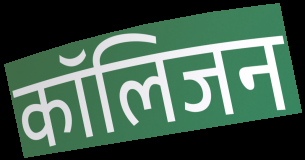
कॉलिजन